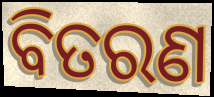
ବିତରଣ